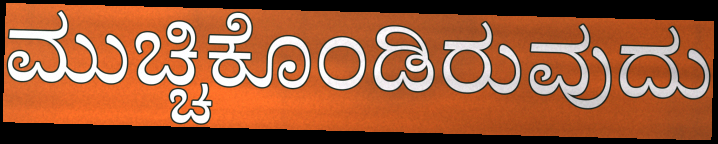
ಮುಚ್ಚಿಕೊಂಡಿರುವುದು